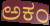
ಅಕಂ